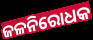
ଜଳନିରୋଧକ